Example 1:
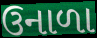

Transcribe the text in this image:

ઉનાળા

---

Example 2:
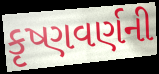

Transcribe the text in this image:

કૃષ્ણવર્ણની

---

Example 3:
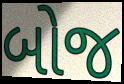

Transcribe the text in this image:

બોજ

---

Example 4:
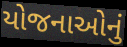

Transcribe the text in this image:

યોજનાઓનું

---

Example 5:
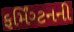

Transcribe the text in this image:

ફર્મિંગ્ટનની